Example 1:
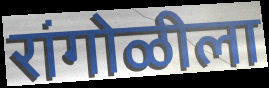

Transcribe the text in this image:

रांगोळीला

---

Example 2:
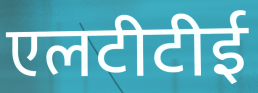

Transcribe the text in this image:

एलटीटीई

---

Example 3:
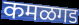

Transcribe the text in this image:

कमळगड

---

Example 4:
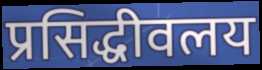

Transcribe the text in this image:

प्रसिद्धीवलय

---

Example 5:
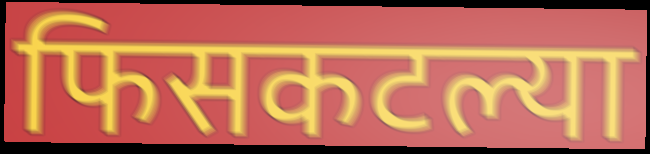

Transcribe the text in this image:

फिसकटल्या